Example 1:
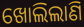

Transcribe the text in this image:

ଖୋଲିଲାଣି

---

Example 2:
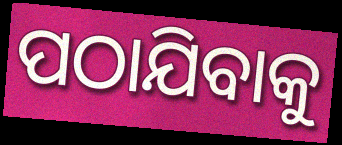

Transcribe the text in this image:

ପଠାଯିବାକୁ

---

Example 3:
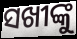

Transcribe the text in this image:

ସଖୀଙ୍କୁ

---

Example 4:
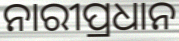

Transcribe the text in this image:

ନାରୀପ୍ରଧାନ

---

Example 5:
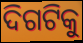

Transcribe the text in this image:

ଦିଗଟିକୁ